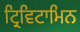
ਟ੍ਰਿਵਿਟਾਮਿਨ